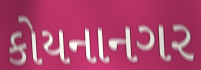
કોયનાનગર